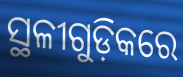
ସ୍ଥଳୀଗୁଡ଼ିକରେ